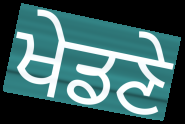
ਖੇਡਣੇ